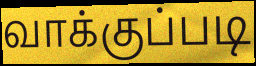
வாக்குப்படி